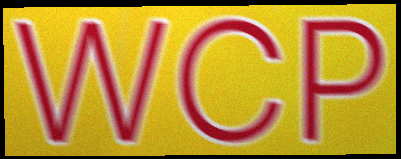
WCP